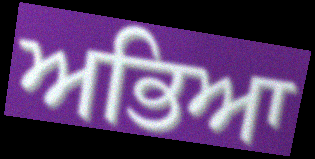
ਅਭਿਆ